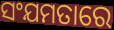
ସଂଯମତାରେ